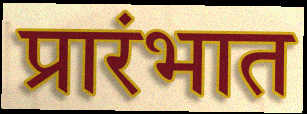
प्रारंभात